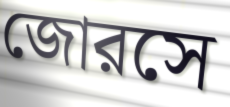
জোরসে